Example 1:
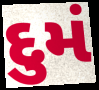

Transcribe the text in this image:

દુમં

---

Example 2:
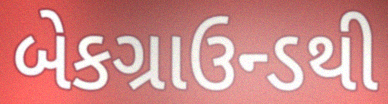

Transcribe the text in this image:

બેકગ્રાઉન્ડથી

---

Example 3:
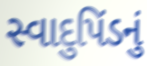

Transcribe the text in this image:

સ્વાદુપિંડનું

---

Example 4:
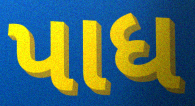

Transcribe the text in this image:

પાધ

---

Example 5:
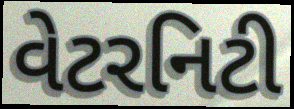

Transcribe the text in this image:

વેટરનિટી